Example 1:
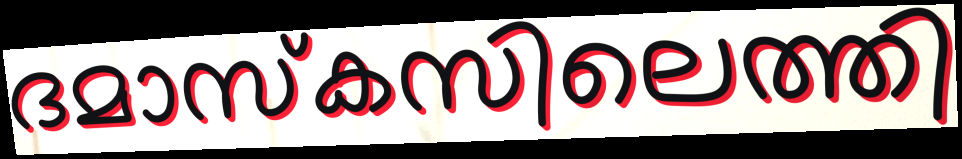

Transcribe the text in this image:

ദമാസ്കസിലെത്തി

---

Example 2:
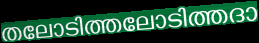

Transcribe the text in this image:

തലോടിത്തലോടിത്തദാ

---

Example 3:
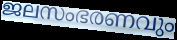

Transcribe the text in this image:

ജലസംഭരണവും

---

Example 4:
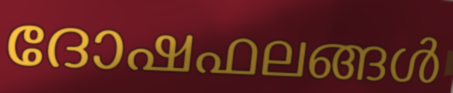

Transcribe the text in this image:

ദോഷഫലങ്ങൾ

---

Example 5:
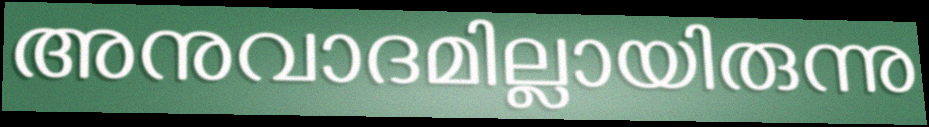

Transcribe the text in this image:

അനുവാദമില്ലായിരുന്നു